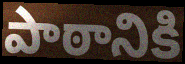
పాఠానికి